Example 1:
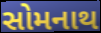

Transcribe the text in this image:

સોમનાથ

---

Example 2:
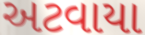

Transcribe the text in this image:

અટવાયા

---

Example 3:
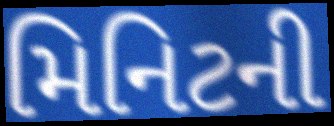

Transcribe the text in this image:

મિનિટની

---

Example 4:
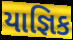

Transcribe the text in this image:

યાજ્ઞિક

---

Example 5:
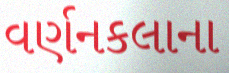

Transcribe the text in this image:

વર્ણનકલાના